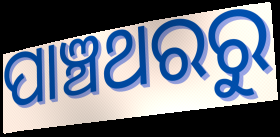
ପାଞ୍ଚଥରରୁ